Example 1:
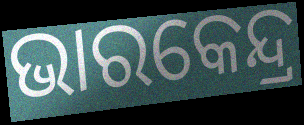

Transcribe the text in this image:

ଭାରକେନ୍ଦ୍ର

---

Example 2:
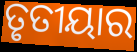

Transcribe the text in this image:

ତୃତୀୟାର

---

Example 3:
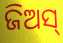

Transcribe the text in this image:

ଜିଅସ୍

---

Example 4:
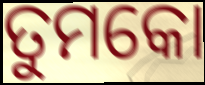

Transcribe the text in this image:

ତୁମକୋ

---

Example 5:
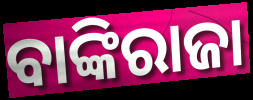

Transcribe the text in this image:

ବାଙ୍କିରାଜା